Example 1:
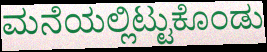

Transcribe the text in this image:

ಮನೆಯಲ್ಲಿಟ್ಟುಕೊಂಡು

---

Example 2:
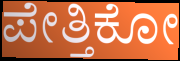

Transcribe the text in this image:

ಪೇತ್ತಿಕೋ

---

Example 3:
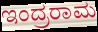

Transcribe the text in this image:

ಇಂದ್ರರಾಮ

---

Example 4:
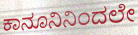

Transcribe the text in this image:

ಕಾನೂನಿನಿಂದಲೇ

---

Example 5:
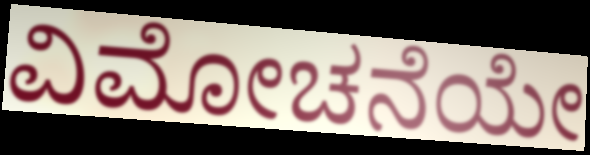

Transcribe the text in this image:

ವಿಮೋಚನೆಯೇ